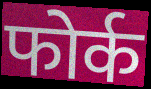
फोर्क